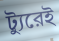
ট্যুরেই